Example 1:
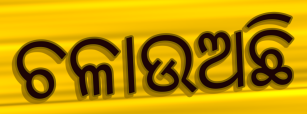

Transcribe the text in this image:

ଚଳାଉଅଛି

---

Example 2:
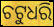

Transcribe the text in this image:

ଚଟୁଧରି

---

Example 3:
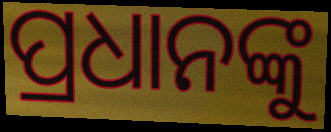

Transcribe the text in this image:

ପ୍ରଧାନଙ୍କୁ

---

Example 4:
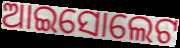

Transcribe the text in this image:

ଆଇସୋଲେଟ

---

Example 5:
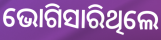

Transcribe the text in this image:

ଭୋଗିସାରିଥିଲେ